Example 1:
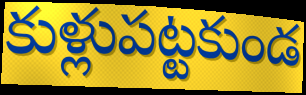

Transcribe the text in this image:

కుళ్లుపట్టకుండ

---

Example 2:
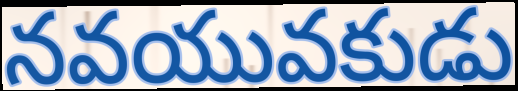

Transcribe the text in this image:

నవయువకుడు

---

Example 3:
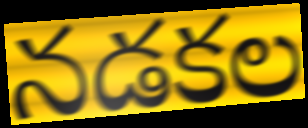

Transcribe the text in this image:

నడకల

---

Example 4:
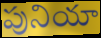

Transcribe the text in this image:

పునియా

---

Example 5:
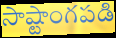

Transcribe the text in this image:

సాష్టాంగపడి